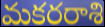
మకరరాశి